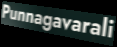
Punnagavarali